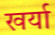
खर्या